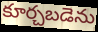
కూర్చబడెను